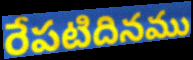
రేపటిదినము